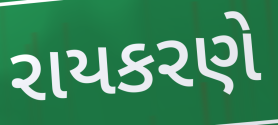
રાયકરણે